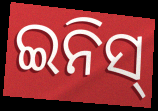
ଇନିସ୍